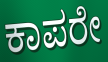
ಕಾಪರೇ